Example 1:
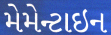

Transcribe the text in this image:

મેમેન્ટાઇન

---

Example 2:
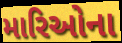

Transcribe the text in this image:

મારિઓના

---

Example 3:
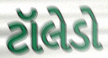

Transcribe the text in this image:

ટૉલેડો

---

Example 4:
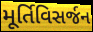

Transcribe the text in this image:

મૂર્તિવિસર્જન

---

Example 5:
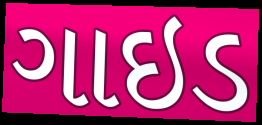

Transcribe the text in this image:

ગાઇડ